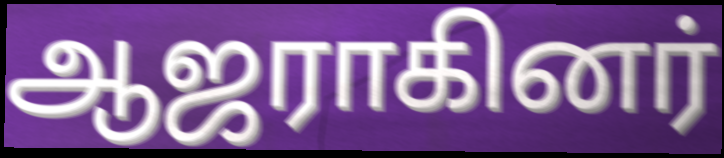
ஆஜராகினர்